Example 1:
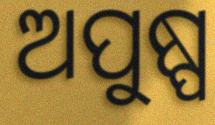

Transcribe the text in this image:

ଅପୁଷ୍ପ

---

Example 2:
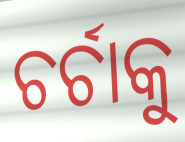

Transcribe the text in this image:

ଚର୍ଚାକୁ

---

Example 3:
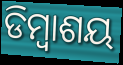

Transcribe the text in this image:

ଡିମ୍ବାଶୟ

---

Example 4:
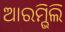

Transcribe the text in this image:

ଆରମ୍ଭିଲି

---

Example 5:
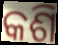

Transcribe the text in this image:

କଶି